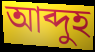
আব্দুহ